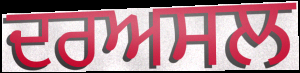
ਦਰਅਸਲ